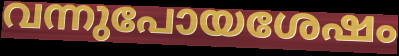
വന്നുപോയശേഷം